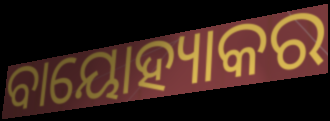
ବାୟୋହ୍ୟାକର